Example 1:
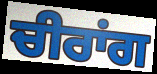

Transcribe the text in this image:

ਚੀਰਾਂਗ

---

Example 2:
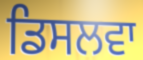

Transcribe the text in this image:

ਡਿਸਲਵਾ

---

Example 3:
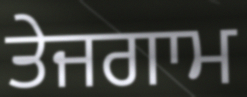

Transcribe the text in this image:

ਤੇਜਗਾਮ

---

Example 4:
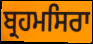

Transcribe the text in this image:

ਬ੍ਰਹਮਸਿਰਾ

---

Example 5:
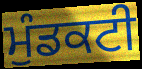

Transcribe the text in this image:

ਮੁੰਡਕਟੀ